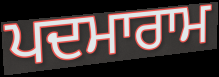
ਪਦਮਾਰਾਮ